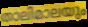
താലിമാലയും